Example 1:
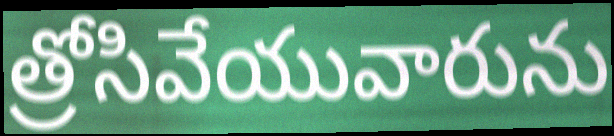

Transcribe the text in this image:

త్రోసివేయువారును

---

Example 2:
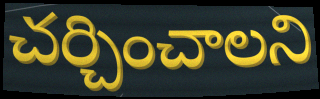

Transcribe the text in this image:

చర్చించాలని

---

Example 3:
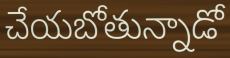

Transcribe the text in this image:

చేయబోతున్నాడో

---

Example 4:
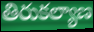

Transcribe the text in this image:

తిరుకల్యాణ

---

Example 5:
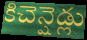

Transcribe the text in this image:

కిచెన్షెడ్లు